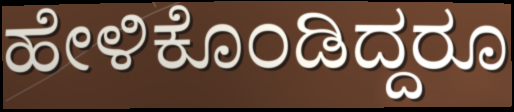
ಹೇಳಿಕೊಂಡಿದ್ದರೂ